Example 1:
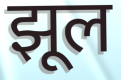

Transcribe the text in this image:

झूल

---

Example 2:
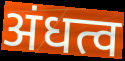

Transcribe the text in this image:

अंधत्व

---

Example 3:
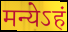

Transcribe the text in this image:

मन्येऽहं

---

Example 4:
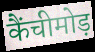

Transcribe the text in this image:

कैंचीमोड़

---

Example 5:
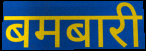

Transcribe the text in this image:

बमबारी